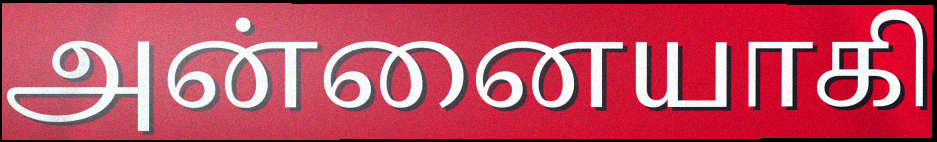
அன்னையாகி